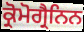
ਕ੍ਰੋਮੋਗ੍ਰੈਨਿਨ